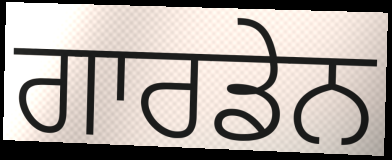
ਗਾਰਡੇਨ